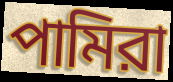
পামিরা